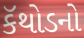
કૅથોડનો